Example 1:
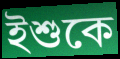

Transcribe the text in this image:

ইশুকে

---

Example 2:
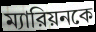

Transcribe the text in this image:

ম্যারিয়নকে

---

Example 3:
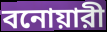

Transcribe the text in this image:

বনোয়ারী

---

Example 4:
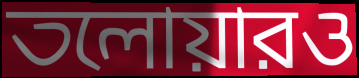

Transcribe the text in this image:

তলোয়ারও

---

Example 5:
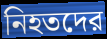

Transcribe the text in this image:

নিহতদের